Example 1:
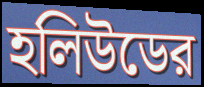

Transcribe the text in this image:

হলিউডের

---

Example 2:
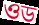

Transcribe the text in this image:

ওড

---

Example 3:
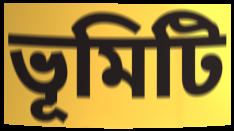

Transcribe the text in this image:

ভূমিটি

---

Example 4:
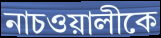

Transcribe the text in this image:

নাচওয়ালীকে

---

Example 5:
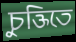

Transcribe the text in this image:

চুক্তিতে